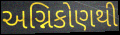
અગ્નિકોણથી